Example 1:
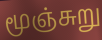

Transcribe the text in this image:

மூஞ்சுறு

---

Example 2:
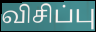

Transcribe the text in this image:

விசிப்பு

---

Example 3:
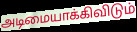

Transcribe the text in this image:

அடிமையாக்கிவிடும்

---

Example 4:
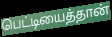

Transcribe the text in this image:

பெட்டியைத்தான்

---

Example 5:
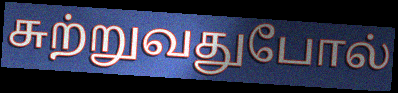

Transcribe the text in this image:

சுற்றுவதுபோல்